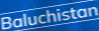
Baluchistan